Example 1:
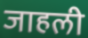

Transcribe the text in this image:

जाहली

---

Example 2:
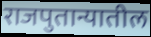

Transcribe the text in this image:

राजपुतान्यातील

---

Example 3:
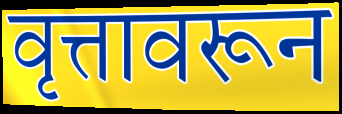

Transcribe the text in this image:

वृत्तावरून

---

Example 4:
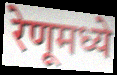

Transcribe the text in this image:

रेणूमध्ये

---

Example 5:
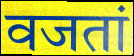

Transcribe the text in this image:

वजतां